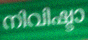
നിവിഷ്ടാ